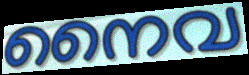
നൈവ